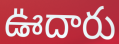
ఊదారు